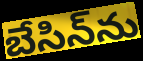
బేసిన్‌ను